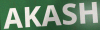
AKASH